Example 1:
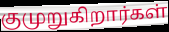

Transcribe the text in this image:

குமுறுகிறார்கள்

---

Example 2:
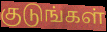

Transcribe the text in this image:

குடுங்கள்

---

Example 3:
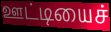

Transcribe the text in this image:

ஊட்டியைச்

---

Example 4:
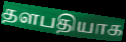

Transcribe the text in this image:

தளபதியாக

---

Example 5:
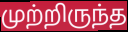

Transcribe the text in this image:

முற்றிருந்த